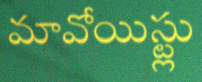
మావోయిస్ట్లు